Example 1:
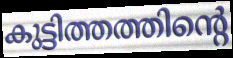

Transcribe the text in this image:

കുട്ടിത്തത്തിന്റെ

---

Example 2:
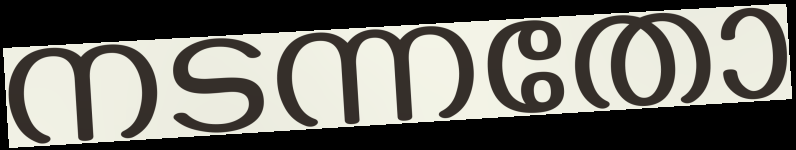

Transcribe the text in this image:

നടന്നതോ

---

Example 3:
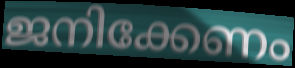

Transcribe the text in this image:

ജനിക്കേണം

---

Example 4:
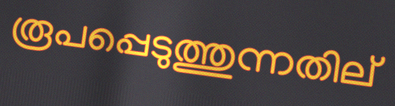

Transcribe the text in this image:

രൂപപ്പെടുത്തുന്നതില്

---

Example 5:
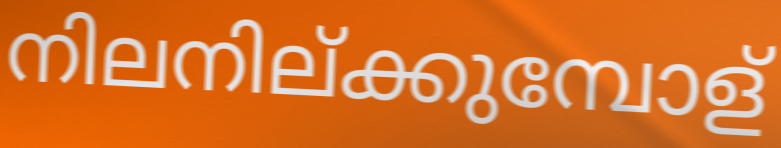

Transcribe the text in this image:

നിലനില്ക്കുമ്പോള്